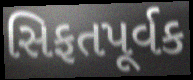
સિફતપૂર્વક